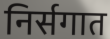
निर्सगात